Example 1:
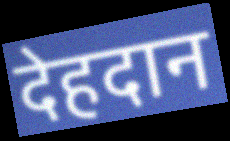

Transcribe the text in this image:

देहदान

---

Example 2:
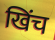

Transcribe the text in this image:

खिंच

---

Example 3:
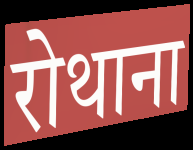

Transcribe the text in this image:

रोथाना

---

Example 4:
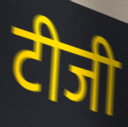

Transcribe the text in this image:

टीजी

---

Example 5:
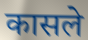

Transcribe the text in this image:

कासले